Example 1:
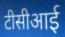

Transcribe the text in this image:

टीसीआई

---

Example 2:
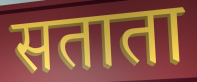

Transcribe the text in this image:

सताता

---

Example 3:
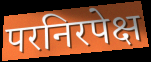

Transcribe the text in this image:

परनिरपेक्ष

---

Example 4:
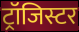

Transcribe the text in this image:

ट्रॉजिस्टर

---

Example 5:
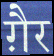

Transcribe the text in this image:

ग़ैर